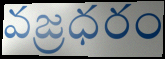
వజ్రధరం